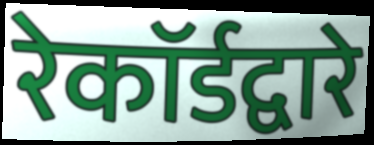
रेकॉर्डद्वारे